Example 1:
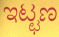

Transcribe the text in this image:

ಇಟ್ಟಣ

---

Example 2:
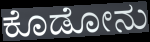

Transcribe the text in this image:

ಕೊಡೋನು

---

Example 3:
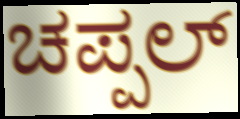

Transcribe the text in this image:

ಚಪ್ಪಲ್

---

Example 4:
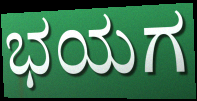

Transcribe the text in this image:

ಭಯಗ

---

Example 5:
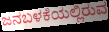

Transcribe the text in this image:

ಜನಬಳಕೆಯಲ್ಲಿರುವ